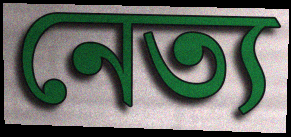
নেত্য